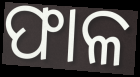
ଫାଳ